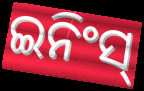
ଇନିଂସ୍